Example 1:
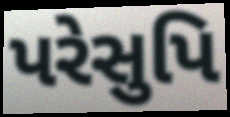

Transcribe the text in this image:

પરેસુપિ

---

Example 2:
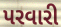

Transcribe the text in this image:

પરવારી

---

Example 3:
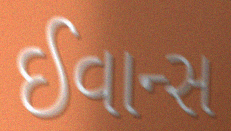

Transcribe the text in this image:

ઈવાન્સ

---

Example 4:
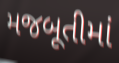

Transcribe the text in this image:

મજબૂતીમાં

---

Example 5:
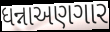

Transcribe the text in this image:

ધન્નાઅણગાર